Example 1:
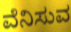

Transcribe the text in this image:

ವೆನಿಸುವ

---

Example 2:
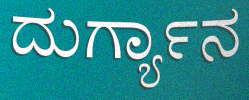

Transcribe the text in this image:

ದುರ್ಗ್ಯಾನ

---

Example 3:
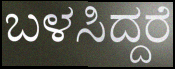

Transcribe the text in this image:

ಬಳಸಿದ್ದರೆ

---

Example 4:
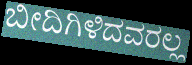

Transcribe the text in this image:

ಬೀದಿಗಿಳಿದವರಲ್ಲ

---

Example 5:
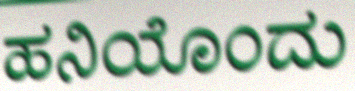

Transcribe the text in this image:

ಹನಿಯೊಂದು